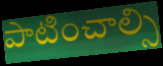
పాటించాల్సి